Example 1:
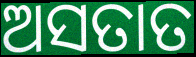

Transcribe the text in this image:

ଅସତାତ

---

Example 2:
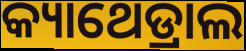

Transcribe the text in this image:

କ୍ୟାଥେଡ୍ରାଲ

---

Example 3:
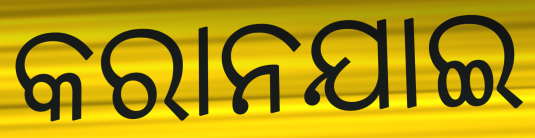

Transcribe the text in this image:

କରାନଯାଇ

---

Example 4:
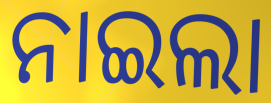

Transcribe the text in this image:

ନାଇଲା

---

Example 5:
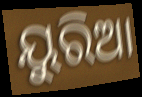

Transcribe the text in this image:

ୟୁରିଆ